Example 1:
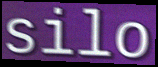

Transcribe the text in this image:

silo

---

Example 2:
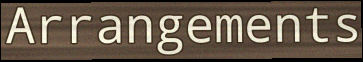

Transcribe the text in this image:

Arrangements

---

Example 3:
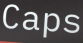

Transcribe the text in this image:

Caps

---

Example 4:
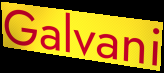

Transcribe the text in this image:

Galvani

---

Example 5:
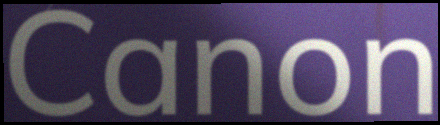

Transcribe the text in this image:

Canon